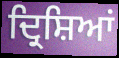
ਦ੍ਰਿਸ਼ਿਆਂ